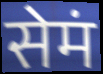
सेमं